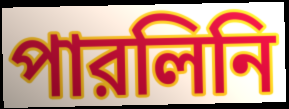
পারলিনি